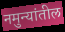
नमुन्यांतील